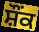
ਸ਼ੌਂਕ